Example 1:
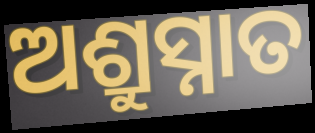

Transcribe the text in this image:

ଅଶ୍ରୁସ୍ନାତ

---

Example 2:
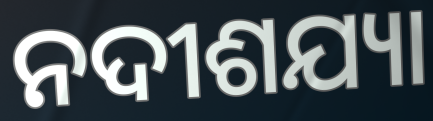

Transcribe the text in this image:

ନଦୀଶଯ୍ୟା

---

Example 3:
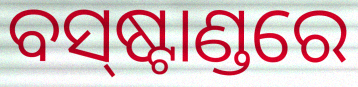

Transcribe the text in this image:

ବସ୍‌ଷ୍ଟାଣ୍ଡରେ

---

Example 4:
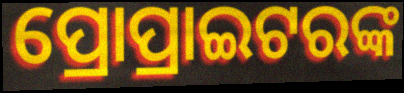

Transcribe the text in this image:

ପ୍ରୋପ୍ରାଇଟରଙ୍କ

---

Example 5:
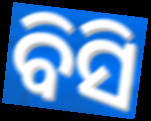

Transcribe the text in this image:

ବିସି